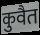
कुवैत